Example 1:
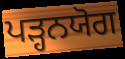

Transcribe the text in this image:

ਪੜ੍ਹਨਯੋਗ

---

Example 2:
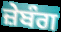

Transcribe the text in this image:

ਜ਼ੇਬੰਗ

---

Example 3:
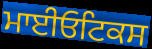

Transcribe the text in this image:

ਮਾਈਓਟਿਕਸ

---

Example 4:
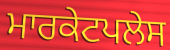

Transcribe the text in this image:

ਮਾਰਕੇਟਪਲੇਸ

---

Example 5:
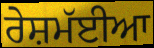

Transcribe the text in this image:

ਰੇਸ਼ਮੱਈਆ